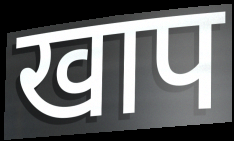
खाप